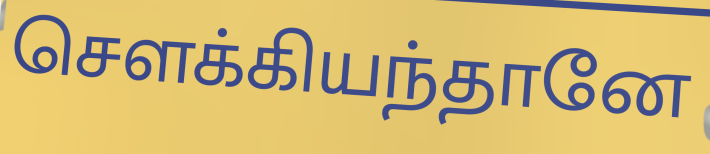
சௌக்கியந்தானே